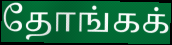
தோங்கக்